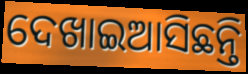
ଦେଖାଇଆସିଛନ୍ତି